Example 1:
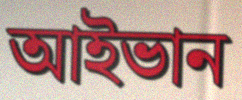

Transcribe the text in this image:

আইভান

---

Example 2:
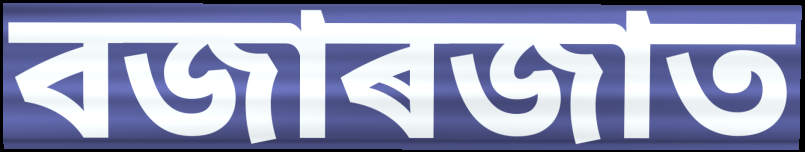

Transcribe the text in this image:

বজাৰজাত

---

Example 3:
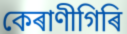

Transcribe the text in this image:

কেৰাণীগিৰি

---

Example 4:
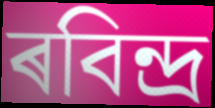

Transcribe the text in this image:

ৰবিন্দ্ৰ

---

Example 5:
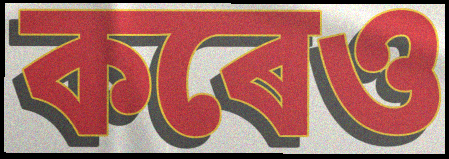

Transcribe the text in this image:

কৰেও